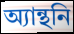
অ্যান্থনি